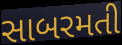
સાબરમતી